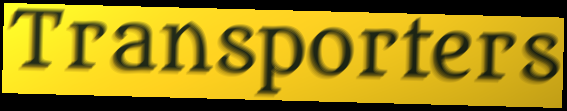
Transporters